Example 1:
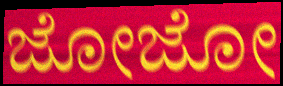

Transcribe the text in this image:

ಜೋಜೋ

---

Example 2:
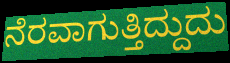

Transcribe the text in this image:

ನೆರವಾಗುತ್ತಿದ್ದುದು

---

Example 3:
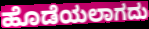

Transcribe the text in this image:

ಹೊಡೆಯಲಾಗದು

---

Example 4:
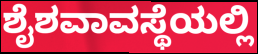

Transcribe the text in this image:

ಶೈಶವಾವಸ್ಥೆಯಲ್ಲಿ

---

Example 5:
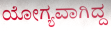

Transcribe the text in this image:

ಯೋಗ್ಯವಾಗಿದ್ದ